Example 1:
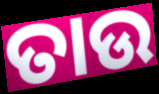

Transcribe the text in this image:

ତାଉ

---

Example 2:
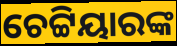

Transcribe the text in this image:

ଚେଟ୍ଟିୟାରଙ୍କ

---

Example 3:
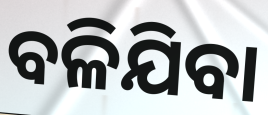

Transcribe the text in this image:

ବଳିଯିବା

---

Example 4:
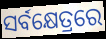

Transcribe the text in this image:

ସର୍ବକ୍ଷେତ୍ରରେ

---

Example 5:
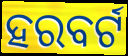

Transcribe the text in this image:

ହରବର୍ଟ